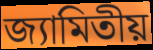
জ্যামিতীয়